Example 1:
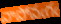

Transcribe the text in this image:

వాపోవఁగఁ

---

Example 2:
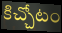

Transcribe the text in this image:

కిచ్చోటం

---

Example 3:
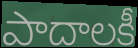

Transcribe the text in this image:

పాదాలకీ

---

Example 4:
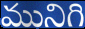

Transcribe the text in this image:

మునిగి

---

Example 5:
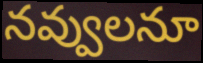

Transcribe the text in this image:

నవ్వులనూ